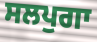
ਸਲਪੁਗਾ